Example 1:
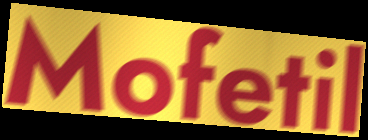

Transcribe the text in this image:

Mofetil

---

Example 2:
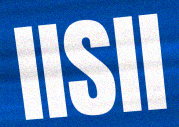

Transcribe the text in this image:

IISII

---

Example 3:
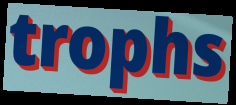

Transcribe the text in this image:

trophs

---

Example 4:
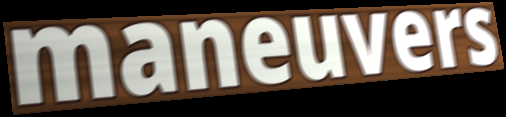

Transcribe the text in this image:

maneuvers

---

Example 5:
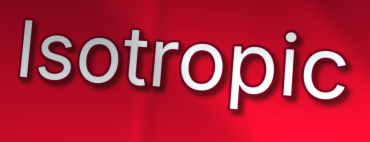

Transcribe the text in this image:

Isotropic